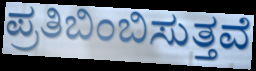
ಪ್ರತಿಬಿಂಬಿಸುತ್ತವೆ